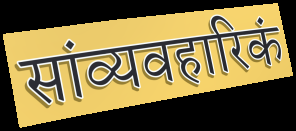
सांव्यवहारिकं